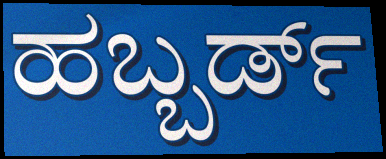
ಹಬ್ಬರ್ಡ್